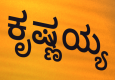
ಕೃಷ್ಣಯ್ಯ